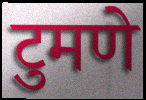
टुमणे